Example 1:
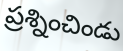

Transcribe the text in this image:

ప్రశ్నించిండు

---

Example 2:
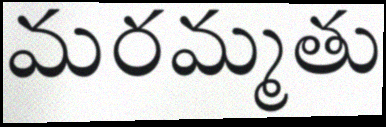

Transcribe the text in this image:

మరమ్మతు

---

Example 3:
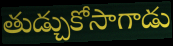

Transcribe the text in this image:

తుడ్చుకోసాగాడు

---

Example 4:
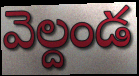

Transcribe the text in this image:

వెల్దండ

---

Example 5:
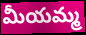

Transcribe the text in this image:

మీయమ్మ